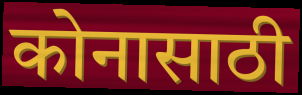
कोनासाठी